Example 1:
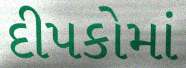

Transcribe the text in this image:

દીપકોમાં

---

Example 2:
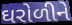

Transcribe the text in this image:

ઘરોળીને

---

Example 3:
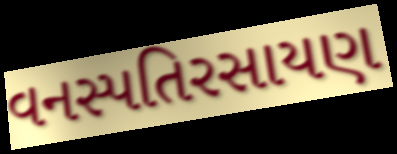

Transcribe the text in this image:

વનસ્પતિરસાયણ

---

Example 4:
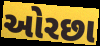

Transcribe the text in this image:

ઓરછા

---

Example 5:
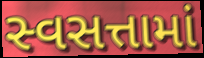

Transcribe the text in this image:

સ્વસત્તામાં